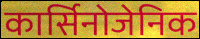
कार्सिनोजेनिक